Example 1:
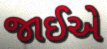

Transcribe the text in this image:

જાઈએ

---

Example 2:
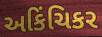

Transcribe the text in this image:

અકિંચિકર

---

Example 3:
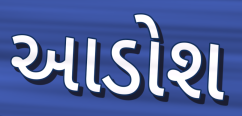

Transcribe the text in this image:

આડોશ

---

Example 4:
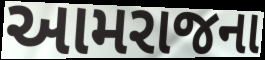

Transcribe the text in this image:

આમરાજના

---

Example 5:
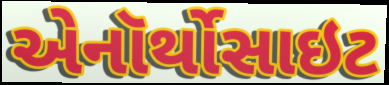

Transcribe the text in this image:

એનૉર્થોસાઇટ